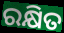
ରକ୍ଷିତ